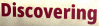
Discovering